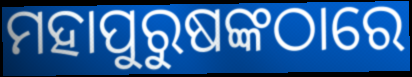
ମହାପୁରୁଷଙ୍କଠାରେ